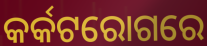
କର୍କଟରୋଗରେ